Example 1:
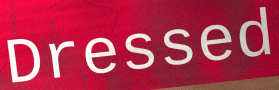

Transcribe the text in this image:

Dressed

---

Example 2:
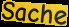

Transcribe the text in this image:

Sache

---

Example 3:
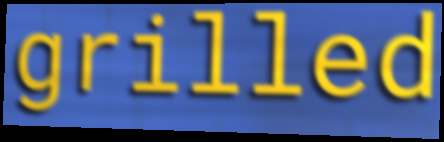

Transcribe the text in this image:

grilled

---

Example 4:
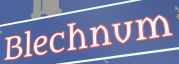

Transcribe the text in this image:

Blechnum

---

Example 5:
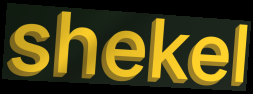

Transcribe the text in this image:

shekel